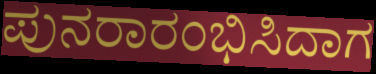
ಪುನರಾರಂಭಿಸಿದಾಗ